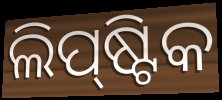
ଲିପ୍‌ଷ୍ଟିକ